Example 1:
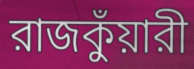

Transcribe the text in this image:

রাজকুঁয়ারী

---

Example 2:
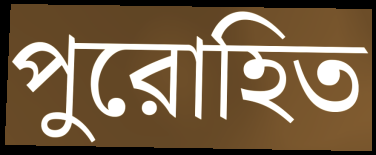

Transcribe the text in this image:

পুরোহিত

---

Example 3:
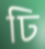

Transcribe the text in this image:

ঢি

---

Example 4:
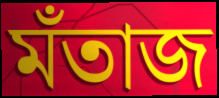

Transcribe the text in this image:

মঁতাজ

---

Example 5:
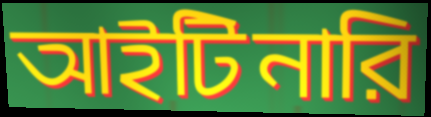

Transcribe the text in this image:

আইটিনারি